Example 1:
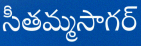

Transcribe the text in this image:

సీతమ్మసాగర్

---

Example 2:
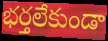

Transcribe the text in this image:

భర్తలేకుండా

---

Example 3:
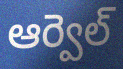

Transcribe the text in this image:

ఆర్వెల్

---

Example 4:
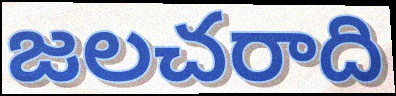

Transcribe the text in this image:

జలచరాది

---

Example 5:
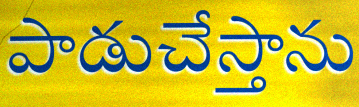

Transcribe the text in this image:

పాడుచేస్తాను